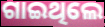
ଗାଇଥିଲେ